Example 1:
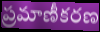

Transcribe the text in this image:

ప్రమాణీకరణ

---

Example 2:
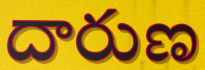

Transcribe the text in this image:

దారుణ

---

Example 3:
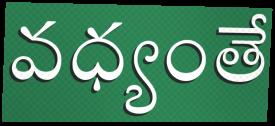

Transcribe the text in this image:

వధ్యంతే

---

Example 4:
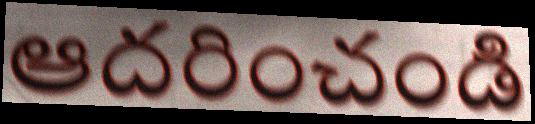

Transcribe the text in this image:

ఆదరించండి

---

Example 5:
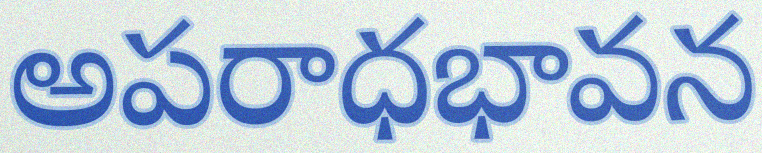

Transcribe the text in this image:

అపరాధభావన